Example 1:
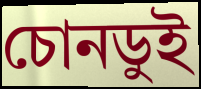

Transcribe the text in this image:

চোনডুই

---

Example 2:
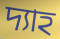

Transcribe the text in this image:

দ্যাহ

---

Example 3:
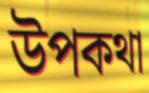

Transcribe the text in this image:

উপকথা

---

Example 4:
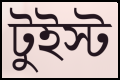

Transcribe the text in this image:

টুইস্ট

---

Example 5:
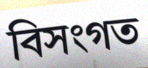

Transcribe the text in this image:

বিসংগত